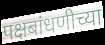
पक्षबांधणीच्या